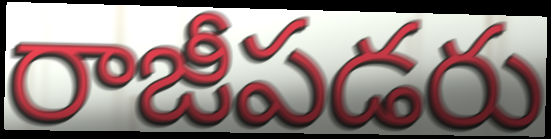
రాజీపడరు